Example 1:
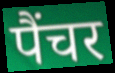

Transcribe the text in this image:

पैंचर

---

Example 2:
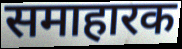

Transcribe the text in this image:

समाहारक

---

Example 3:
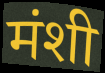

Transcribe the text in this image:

मंशी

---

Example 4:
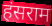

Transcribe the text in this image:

हंसराम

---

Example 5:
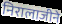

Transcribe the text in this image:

निरालाजीने